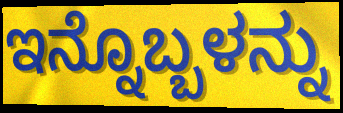
ಇನ್ನೊಬ್ಬಳನ್ನು